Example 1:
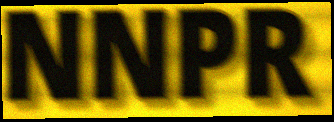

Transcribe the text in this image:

NNPR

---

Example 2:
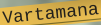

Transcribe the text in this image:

Vartamana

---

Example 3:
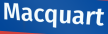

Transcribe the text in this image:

Macquart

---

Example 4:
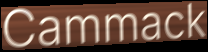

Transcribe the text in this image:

Cammack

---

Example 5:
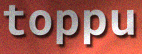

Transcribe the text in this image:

toppu